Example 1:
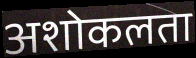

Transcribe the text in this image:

अशोकलता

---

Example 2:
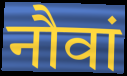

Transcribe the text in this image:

नौवां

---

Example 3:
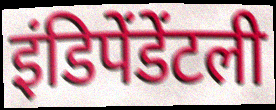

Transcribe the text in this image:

इंडिपेंडेंटली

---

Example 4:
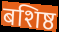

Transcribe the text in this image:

बशिष्ठ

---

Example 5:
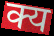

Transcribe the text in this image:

क्य